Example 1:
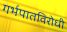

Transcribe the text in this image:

गर्भपातविरोधी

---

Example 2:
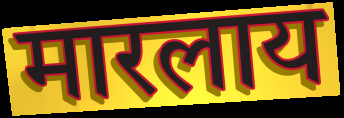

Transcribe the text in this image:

मारलाय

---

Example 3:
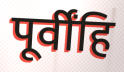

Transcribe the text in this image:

पूर्वींहि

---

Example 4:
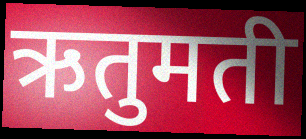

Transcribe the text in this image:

ऋतुमती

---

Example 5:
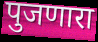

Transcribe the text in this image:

पुजणारा